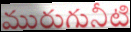
మురుగునీటి